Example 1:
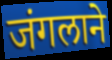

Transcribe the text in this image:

जंगलाने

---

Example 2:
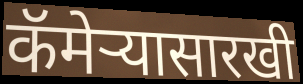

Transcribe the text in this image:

कॅमेऱ्यासारखी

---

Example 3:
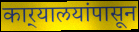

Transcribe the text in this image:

कार्यालयांपासून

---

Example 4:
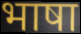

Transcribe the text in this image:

भाषा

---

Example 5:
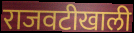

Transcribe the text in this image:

राजवटीखाली